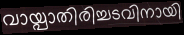
വായ്പാതിരിച്ചടവിനായി